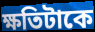
ক্ষতিটাকে